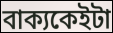
বাক্যকেইটা